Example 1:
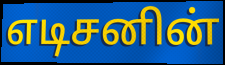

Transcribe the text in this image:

எடிசனின்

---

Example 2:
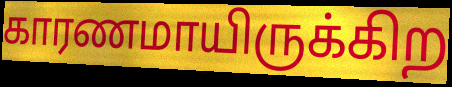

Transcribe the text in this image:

காரணமாயிருக்கிற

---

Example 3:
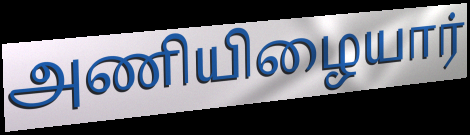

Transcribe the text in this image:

அணியிழையார்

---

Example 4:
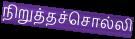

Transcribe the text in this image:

நிறுத்தச்சொல்லி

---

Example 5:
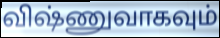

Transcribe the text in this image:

விஷ்ணுவாகவும்